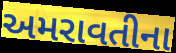
અમરાવતીના